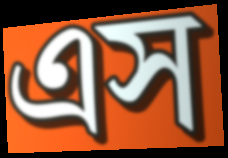
এস